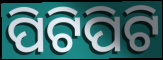
ପିଟିପିଟି